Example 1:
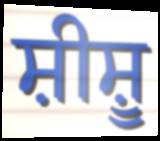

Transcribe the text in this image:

ਸ਼ੀਸ਼ੂ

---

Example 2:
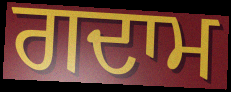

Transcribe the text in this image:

ਗਦਾਮ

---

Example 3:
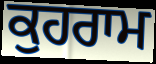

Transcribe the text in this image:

ਕੁਹਰਾਮ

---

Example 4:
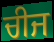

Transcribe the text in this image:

ਚੀਜ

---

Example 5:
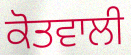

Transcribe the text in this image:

ਕੋਤਵਾਲੀ